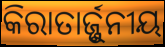
କିରାତାର୍ଜ୍ଜୁନୀୟ